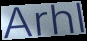
Arhl